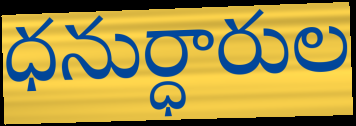
ధనుర్ధారుల